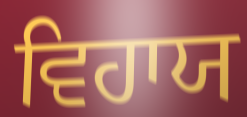
ਵਿਹਾਯ